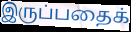
இருப்பதைக்